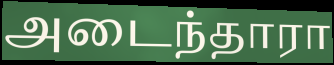
அடைந்தாரா